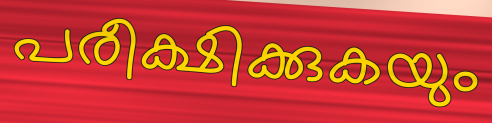
പരീക്ഷിക്കുകയും